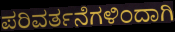
ಪರಿವರ್ತನೆಗಳಿಂದಾಗಿ